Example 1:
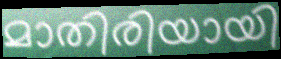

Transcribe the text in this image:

മാതിരിയായി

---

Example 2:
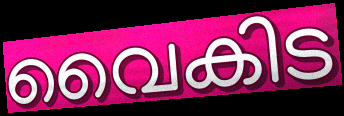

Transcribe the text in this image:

വൈകിട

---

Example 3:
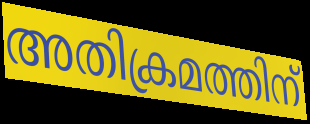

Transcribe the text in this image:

അതിക്രമത്തിന്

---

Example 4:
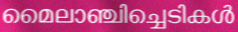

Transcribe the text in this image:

മൈലാഞ്ചിച്ചെടികൾ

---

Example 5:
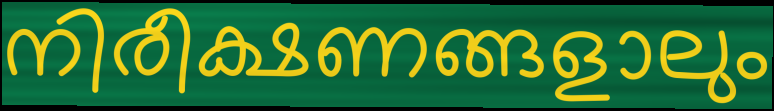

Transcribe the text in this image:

നിരീക്ഷണങ്ങളാലും